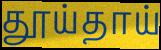
தூய்தாய்